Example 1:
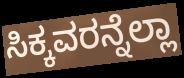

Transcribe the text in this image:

ಸಿಕ್ಕವರನ್ನೆಲ್ಲಾ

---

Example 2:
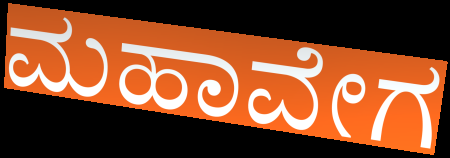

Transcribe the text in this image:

ಮಹಾವೇಗ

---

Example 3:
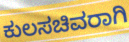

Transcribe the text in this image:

ಕುಲಸಚಿವರಾಗಿ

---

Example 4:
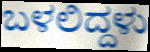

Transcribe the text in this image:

ಬಳಲಿದ್ದಳು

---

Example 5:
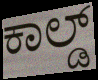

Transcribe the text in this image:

ಕಾಲ್ಡ್